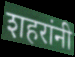
शहरांनी